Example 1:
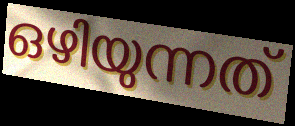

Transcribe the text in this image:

ഒഴിയുന്നത്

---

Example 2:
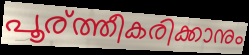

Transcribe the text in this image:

പൂര്ത്തീകരിക്കാനും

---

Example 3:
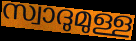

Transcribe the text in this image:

സ്വാദുമുള്ള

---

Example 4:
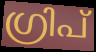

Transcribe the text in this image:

ഗ്രിപ്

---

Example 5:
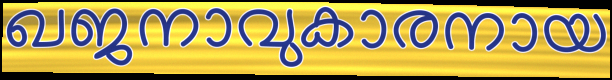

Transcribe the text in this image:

ഖജനാവുകാരനായ